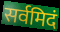
सर्वमिदं